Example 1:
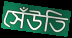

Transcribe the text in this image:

সেঁউতি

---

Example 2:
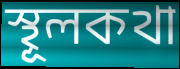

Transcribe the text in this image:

স্থূলকথা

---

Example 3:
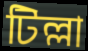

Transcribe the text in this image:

টিল্লা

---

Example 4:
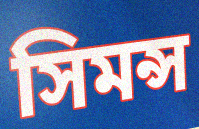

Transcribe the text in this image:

সিমন্স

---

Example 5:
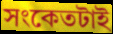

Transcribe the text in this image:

সংকেতটাই